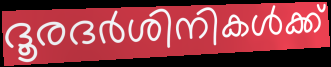
ദൂരദർശിനികൾക്ക്